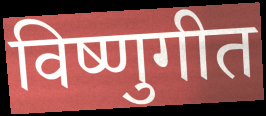
विष्णुगीत